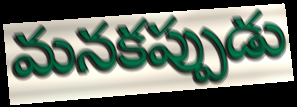
మనకప్పుడు